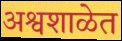
अश्वशाळेत